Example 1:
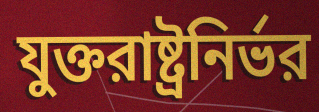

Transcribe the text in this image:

যুক্তরাষ্ট্রনির্ভর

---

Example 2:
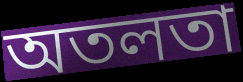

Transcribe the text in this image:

অতলতা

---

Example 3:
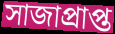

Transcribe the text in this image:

সাজাপ্রাপ্ত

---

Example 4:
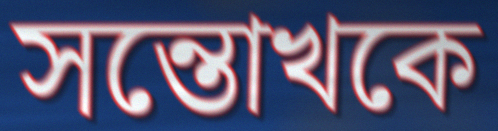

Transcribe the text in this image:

সন্তোখকে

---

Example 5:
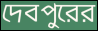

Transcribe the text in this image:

দেবপুরের